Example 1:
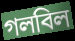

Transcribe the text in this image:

গলবিল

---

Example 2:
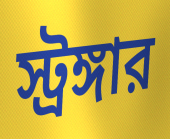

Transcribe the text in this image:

স্ট্রঙ্গার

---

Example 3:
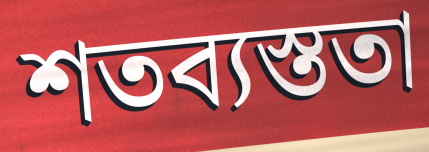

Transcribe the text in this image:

শতব্যস্ততা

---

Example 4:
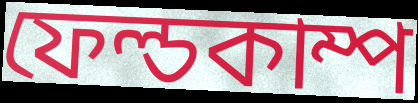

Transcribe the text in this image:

ফেল্ডকাম্প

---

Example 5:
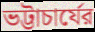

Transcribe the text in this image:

ভট্টাচার্যের